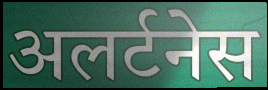
अलर्टनेस